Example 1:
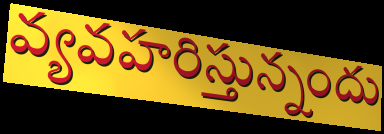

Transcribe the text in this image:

వ్యవహరిస్తున్నందు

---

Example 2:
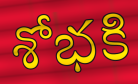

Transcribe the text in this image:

శోభకి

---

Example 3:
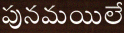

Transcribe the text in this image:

పునమయిలే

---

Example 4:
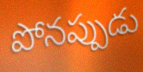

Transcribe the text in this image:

పోనప్పుడు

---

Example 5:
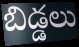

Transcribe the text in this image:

బిడ్డలు